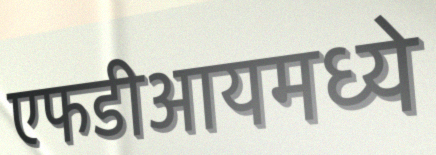
एफडीआयमध्ये